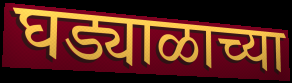
घड्याळाच्या